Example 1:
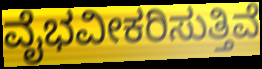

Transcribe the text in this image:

ವೈಭವೀಕರಿಸುತ್ತಿವೆ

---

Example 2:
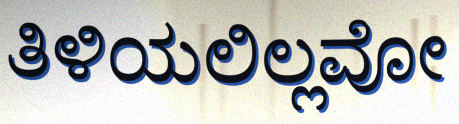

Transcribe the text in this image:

ತಿಳಿಯಲಿಲ್ಲವೋ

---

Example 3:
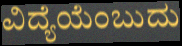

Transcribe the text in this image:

ವಿದ್ಯೆಯೆಂಬುದು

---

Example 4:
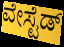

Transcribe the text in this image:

ವೇಸ್ಟೆಡ್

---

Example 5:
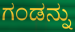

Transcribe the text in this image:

ಗಂಡನ್ನು